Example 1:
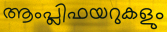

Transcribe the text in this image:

ആംപ്ലിഫയറുകളും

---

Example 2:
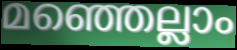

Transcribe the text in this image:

മഞ്ഞെല്ലാം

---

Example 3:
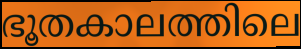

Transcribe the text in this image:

ഭൂതകാലത്തിലെ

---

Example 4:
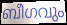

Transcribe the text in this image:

ബീഗവും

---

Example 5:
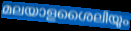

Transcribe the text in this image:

മലയാളശൈലിയും